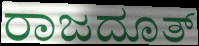
ರಾಜದೂತ್